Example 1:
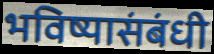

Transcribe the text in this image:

भविष्यासंबंधी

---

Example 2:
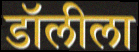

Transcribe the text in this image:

डॉलीला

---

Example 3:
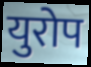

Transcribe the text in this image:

युरोप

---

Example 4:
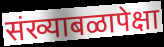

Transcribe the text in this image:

संख्याबळापेक्षा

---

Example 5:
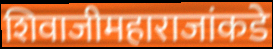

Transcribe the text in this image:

शिवाजीमहाराजांकडे